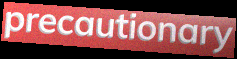
precautionary